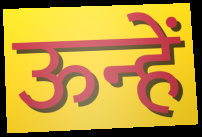
ऊन्हें